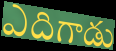
ఎదిగాడు